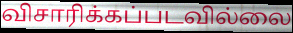
விசாரிக்கப்படவில்லை